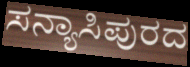
ಸನ್ಯಾಸಿಪುರದ